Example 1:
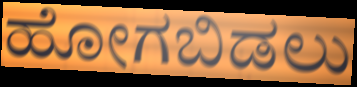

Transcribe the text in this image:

ಹೋಗಬಿಡಲು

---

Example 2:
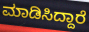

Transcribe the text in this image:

ಮಾಡಿಸಿದ್ದಾರೆ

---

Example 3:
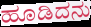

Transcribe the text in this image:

ಹೂಡಿದನು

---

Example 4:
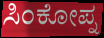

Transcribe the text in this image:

ಸಿಂಕೋಪ್ನ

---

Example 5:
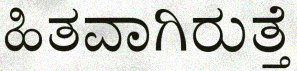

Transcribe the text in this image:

ಹಿತವಾಗಿರುತ್ತೆ